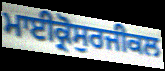
ਮਾਈਕ੍ਰੋਸੁਰਜੀਕਲ